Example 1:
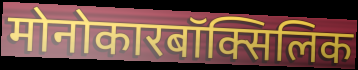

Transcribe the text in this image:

मोनोकारबॉक्सिलिक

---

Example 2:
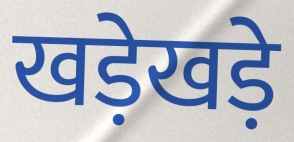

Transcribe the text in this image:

खड़ेखड़े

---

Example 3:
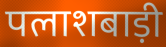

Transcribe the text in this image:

पलाशबाड़ी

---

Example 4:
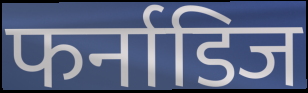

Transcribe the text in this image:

फर्नाडिज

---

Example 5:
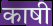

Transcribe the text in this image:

काषी